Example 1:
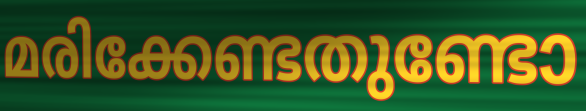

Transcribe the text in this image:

മരിക്കേണ്ടതുണ്ടോ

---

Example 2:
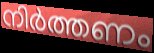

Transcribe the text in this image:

നിർത്തണം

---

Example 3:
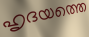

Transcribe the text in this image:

ഹൃദയത്തെ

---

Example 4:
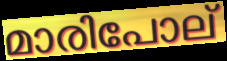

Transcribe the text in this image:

മാരിപോല്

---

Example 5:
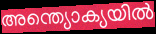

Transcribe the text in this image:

അന്ത്യൊക്യയിൽ